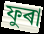
ফুৰা